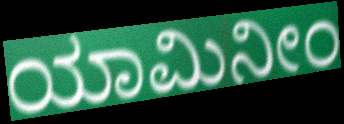
ಯಾಮಿನೀಂ